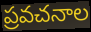
ప్రవచనాల